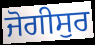
ਜੋਗੀਸੁਰ